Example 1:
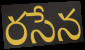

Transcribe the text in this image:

రసేన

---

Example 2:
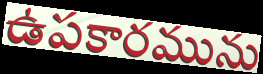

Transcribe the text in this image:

ఉపకారమును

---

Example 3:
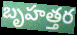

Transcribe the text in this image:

బృహత్తర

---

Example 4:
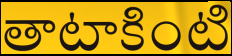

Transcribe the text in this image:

తాటాకింటి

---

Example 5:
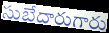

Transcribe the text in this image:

సుబేదారుగారు